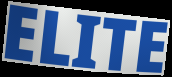
ELITE